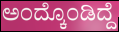
ಅಂದ್ಕೊಂಡಿದ್ದೆ